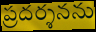
ప్రదర్శనను